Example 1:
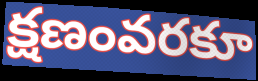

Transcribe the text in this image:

క్షణంవరకూ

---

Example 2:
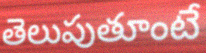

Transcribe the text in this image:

తెలుపుతూంటే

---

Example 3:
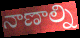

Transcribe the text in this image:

నాణాల్ని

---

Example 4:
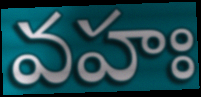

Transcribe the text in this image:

వహః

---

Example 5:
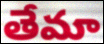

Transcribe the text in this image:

తేమా